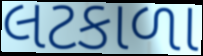
લટકાળા